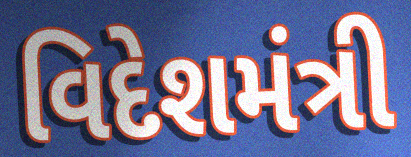
વિદેશમંત્રી